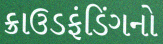
ક્રાઉડફંડિંગનો